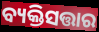
ବ୍ୟକ୍ତିସତ୍ତାର